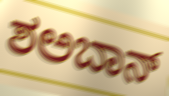
ಶಅಬಾನ್